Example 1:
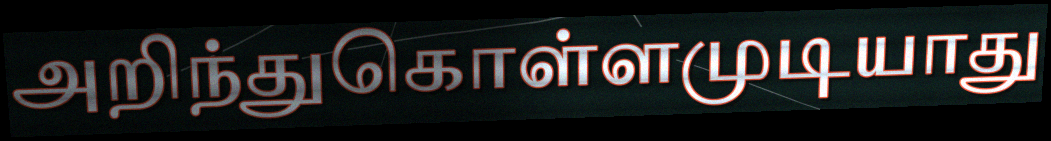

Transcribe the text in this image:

அறிந்துகொள்ளமுடியாது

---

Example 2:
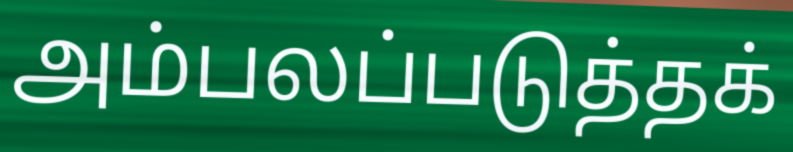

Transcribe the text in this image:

அம்பலப்படுத்தக்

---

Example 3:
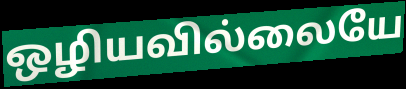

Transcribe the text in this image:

ஒழியவில்லையே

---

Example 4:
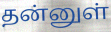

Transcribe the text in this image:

தன்னுள்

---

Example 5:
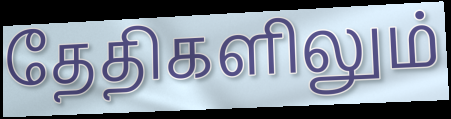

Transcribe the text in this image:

தேதிகளிலும்